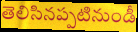
తెలిసినప్పటినుండీ